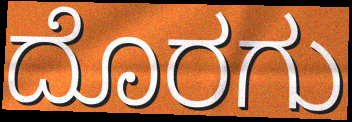
ದೊರಗು